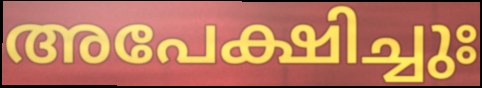
അപേക്ഷിച്ചുഃ